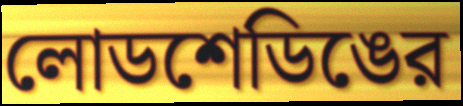
লোডশেডিঙের